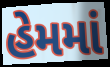
હેમમાં